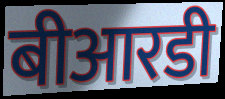
बीआरडी